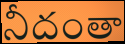
నీదంతా